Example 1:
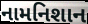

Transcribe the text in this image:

નામનિશાન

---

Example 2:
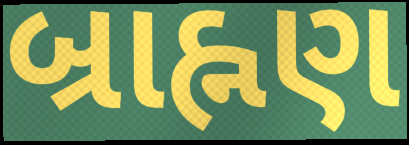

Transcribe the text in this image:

બ્રાહ્નણ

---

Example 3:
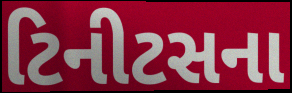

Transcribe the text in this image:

ટિનીટસના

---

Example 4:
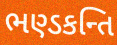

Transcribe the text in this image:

ભણ્ડકન્તિ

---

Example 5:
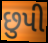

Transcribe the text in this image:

છુપી